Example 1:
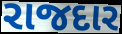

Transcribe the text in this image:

રાજદાર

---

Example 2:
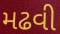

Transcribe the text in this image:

મઢવી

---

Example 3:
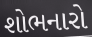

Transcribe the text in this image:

શોભનારો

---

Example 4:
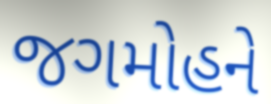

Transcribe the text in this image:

જગમોહને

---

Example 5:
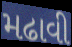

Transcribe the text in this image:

મઢાવી